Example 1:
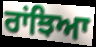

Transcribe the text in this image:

ਰਾਂਝਿਆ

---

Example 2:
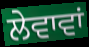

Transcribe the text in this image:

ਲੇਵਾਵਾਂ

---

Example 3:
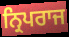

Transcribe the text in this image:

ਨ੍ਰਿਪਰਾਜ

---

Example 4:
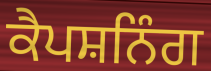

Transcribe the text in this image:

ਕੈਪਸ਼ਨਿੰਗ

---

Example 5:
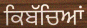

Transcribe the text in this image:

ਕਿਬੱਚਿਆਂ